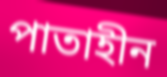
পাতাহীন